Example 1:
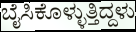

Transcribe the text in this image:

ಬೈಸಿಕೊಳ್ಳುತ್ತಿದ್ದಳು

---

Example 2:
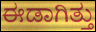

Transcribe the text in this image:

ಈಡಾಗಿತ್ತು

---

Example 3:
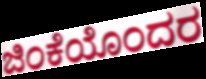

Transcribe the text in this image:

ಜಿಂಕೆಯೊಂದರ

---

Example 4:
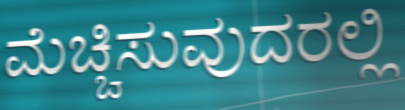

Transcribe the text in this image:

ಮೆಚ್ಚಿಸುವುದರಲ್ಲಿ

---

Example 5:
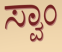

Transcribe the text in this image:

ಸ್ವಾಂ